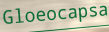
Gloeocapsa